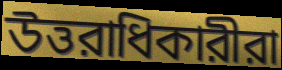
উত্তরাধিকারীরা